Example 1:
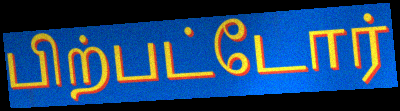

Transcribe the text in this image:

பிற்பட்டோர்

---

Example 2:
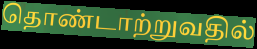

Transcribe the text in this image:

தொண்டாற்றுவதில்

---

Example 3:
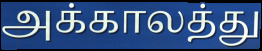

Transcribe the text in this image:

அக்காலத்து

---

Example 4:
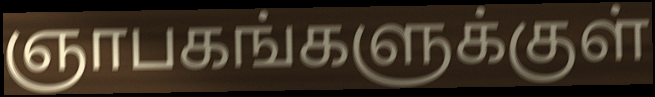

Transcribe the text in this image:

ஞாபகங்களுக்குள்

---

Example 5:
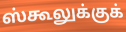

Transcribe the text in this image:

ஸ்கூலுக்குக்